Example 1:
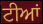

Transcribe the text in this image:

ਟੀਆਂ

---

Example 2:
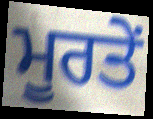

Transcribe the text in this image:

ਮੂਰਤੇਂ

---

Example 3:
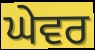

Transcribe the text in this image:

ਘੇਵਰ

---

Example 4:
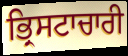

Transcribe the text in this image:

ਭ੍ਰਿਸਟਾਚਾਰੀ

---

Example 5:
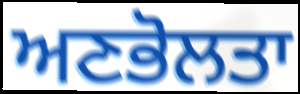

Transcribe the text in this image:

ਅਣਭੋਲਤਾ